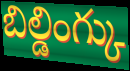
బిల్డింగ్కు